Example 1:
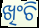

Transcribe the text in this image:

ଖିଂଚି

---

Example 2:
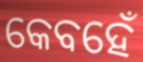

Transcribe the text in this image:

କେବହେଁ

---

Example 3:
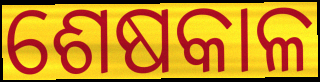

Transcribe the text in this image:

ଶେଷକାଳ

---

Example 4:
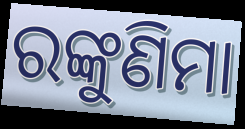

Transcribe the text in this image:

ରଙ୍କୁଣିମା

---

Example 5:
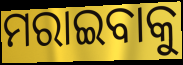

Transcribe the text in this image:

ମରାଇବାକୁ